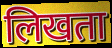
लिखता